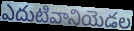
ఎదుటివానియెడల